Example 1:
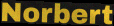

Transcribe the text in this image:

Norbert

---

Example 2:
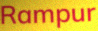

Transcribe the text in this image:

Rampur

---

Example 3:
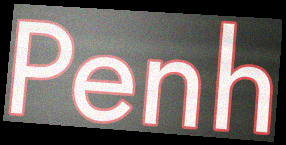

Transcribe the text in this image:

Penh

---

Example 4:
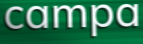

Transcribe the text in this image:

campa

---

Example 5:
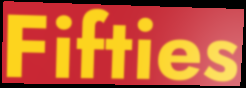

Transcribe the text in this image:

Fifties